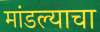
मांडल्याचा